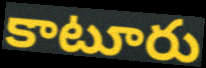
కాటూరు